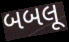
બબલૂ